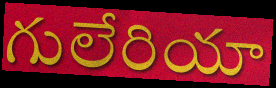
గులేరియా